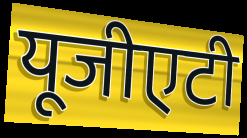
यूजीएटी